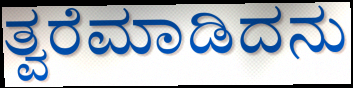
ತ್ವರೆಮಾಡಿದನು